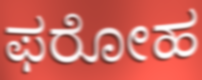
ಫರೋಹ